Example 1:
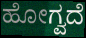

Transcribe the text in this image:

ಹೋಗ್ವದೆ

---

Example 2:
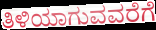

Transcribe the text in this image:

ತಿಳಿಯಾಗುವವರೆಗೆ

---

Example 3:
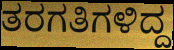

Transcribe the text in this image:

ತರಗತಿಗಳಿದ್ದ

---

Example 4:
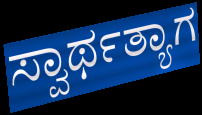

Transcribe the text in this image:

ಸ್ವಾರ್ಥತ್ಯಾಗ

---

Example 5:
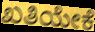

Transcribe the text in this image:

ಖತಿಯೇಕೆ